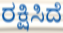
ರಕ್ಷಿಸಿದೆ